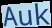
Auk